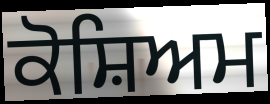
ਕੋਸ਼ਿਅਮ